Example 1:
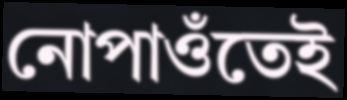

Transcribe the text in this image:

নোপাওঁতেই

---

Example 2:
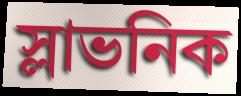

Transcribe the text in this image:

স্লাভনিক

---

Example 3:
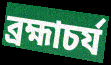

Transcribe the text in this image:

ব্ৰহ্মাচৰ্য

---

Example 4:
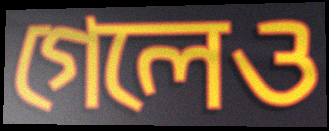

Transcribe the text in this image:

গেলেও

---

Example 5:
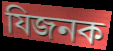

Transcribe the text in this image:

যিজনক